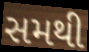
સમથી